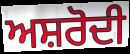
ਅਸ਼ਰੋਦੀ